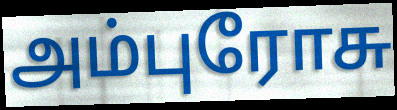
அம்புரோசு